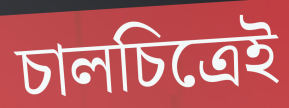
চালচিত্রেই